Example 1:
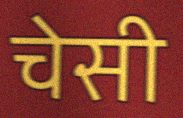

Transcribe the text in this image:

चेसी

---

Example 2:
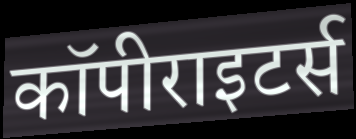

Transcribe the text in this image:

कॉपीराइटर्स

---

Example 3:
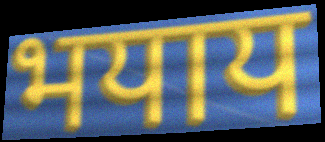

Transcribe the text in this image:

भयाय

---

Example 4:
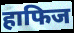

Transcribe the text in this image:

हाफिज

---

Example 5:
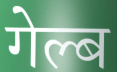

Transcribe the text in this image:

गेल्ब